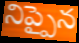
నిప్పైన